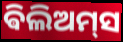
ଵିଲିଅମ୍‌ସ